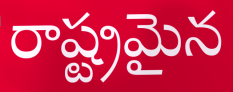
రాష్ట్రమైన